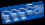
ଜୁଳୁଜୁଳିଆ